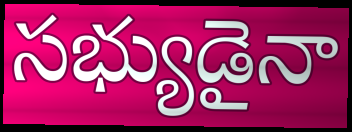
సభ్యుడైనా